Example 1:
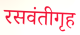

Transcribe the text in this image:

रसवंतीगृह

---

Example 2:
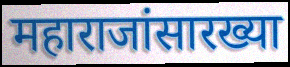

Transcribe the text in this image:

महाराजांसारख्या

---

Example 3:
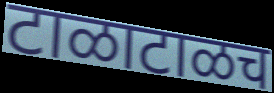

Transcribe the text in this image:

टाळाटाळच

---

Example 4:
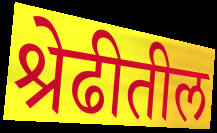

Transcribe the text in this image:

श्रेढीतील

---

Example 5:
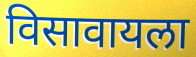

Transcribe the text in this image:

विसावायला